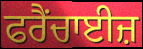
ਫਰੈਂਚਾਈਜ਼